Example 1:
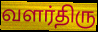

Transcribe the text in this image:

வளர்திரு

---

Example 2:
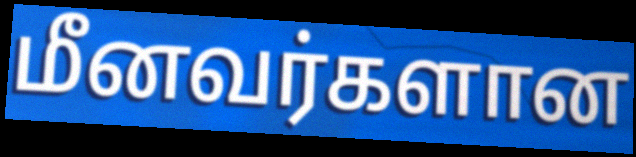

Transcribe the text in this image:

மீனவர்களான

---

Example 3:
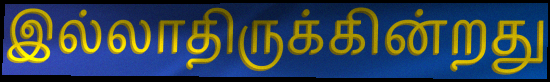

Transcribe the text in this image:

இல்லாதிருக்கின்றது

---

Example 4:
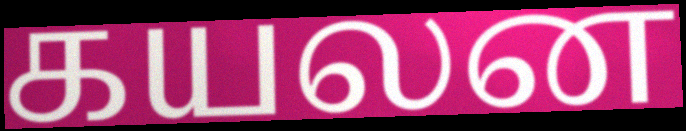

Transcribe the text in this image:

கயலன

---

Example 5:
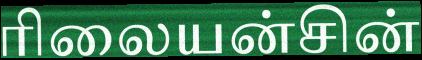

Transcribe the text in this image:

ரிலையன்சின்